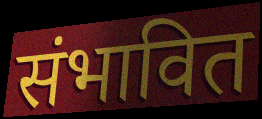
संभावित